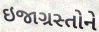
ઇજાગ્રસ્તોને